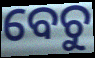
ବେଚୁ